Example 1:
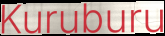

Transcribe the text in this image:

Kuruburu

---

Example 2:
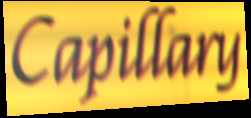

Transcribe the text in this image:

Capillary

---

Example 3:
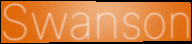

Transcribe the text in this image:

Swanson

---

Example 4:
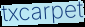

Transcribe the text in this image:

txcarpet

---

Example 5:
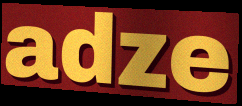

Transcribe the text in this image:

adze